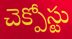
చెక్పోస్టు